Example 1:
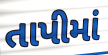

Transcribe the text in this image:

તાપીમાં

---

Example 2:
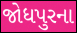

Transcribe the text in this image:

જોધપુરના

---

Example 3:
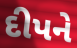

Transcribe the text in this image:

દીપને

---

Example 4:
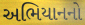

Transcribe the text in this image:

અભિયાનનો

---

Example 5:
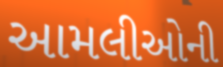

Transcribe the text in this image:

આમલીઓની